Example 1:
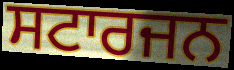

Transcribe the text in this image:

ਸਟਾਰਜਨ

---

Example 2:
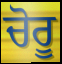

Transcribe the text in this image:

ਚੋਰੂ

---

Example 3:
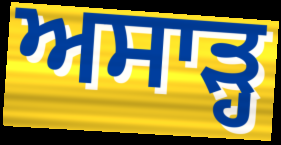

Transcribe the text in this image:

ਅਸਾੜ੍ਹ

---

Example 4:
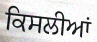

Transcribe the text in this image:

ਕਿਸਲੀਆਂ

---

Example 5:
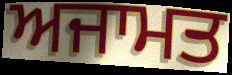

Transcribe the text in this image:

ਅਜਾਮਤ